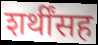
शर्थींसह